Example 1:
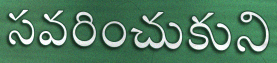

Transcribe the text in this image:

సవరించుకుని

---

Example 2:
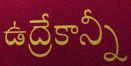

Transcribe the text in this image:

ఉద్రేకాన్నీ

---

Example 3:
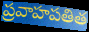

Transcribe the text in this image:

ప్రవాహపతిత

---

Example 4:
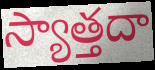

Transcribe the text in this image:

స్యాత్తదా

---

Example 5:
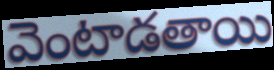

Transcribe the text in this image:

వెంటాడతాయి